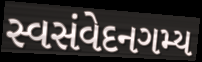
સ્વસંવેદનગમ્ય